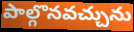
పాల్గొనవచ్చును